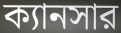
ক্যানসার